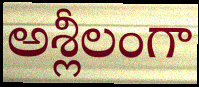
అశ్లీలంగా